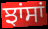
ਝਾਂਸਾਂ